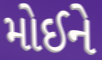
મોઈને